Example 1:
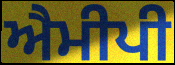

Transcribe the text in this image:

ਐਮੀਪੀ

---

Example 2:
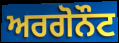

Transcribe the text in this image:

ਅਰਗੋਨੌਟ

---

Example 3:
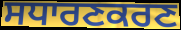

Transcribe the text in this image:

ਸਧਾਰਣਕਰਣ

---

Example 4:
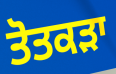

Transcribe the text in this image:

ਤੋਤਕੜਾ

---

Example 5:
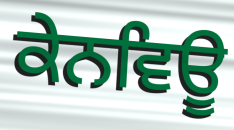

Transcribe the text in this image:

ਕੇਨਵਿਊ